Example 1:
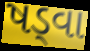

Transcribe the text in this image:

ષડ્વા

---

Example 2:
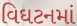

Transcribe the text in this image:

વિઘટનમાં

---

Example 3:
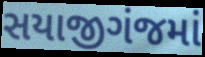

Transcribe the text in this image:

સયાજીગંજમાં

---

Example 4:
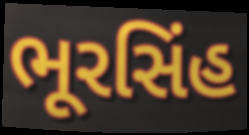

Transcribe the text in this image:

ભૂરસિંહ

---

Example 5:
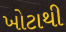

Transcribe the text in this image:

ખોટાથી